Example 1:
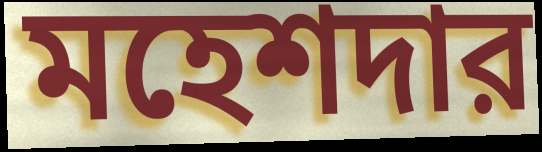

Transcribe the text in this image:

মহেশদার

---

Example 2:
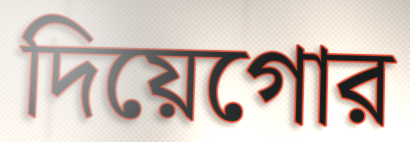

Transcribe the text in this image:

দিয়েগোর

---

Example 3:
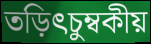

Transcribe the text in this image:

তড়িৎচুম্বকীয়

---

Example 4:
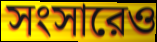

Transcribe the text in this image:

সংসারেও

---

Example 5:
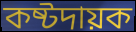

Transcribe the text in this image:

কষ্টদায়ক